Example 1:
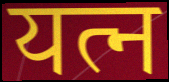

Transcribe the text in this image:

यत्न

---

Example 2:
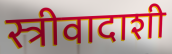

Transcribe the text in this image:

स्त्रीवादाशी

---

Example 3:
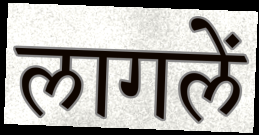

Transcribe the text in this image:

लागलें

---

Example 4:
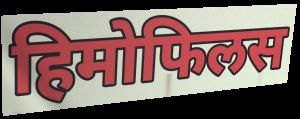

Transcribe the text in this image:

हिमोफिलस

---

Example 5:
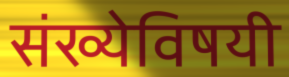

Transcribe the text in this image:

संख्येविषयी